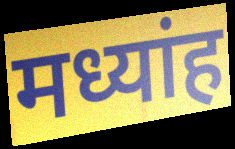
मध्यांह